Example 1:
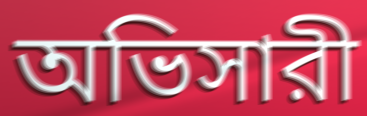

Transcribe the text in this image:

অভিসারী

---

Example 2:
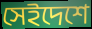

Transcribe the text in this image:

সেইদেশে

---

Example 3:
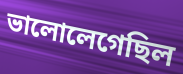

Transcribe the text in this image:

ভালোলেগেছিল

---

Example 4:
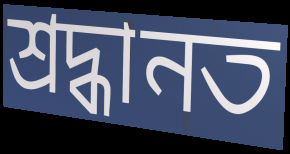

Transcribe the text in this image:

শ্রদ্ধানত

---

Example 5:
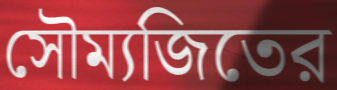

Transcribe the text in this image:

সৌম্যজিতের